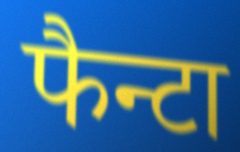
फैन्टा